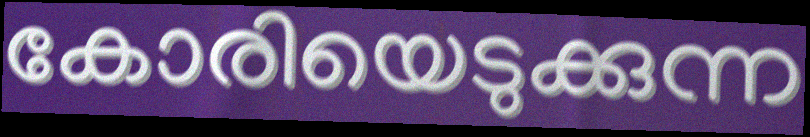
കോരിയെടുക്കുന്ന